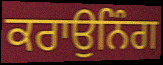
ਕਰਾਉਨਿੰਗ